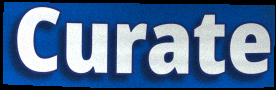
Curate